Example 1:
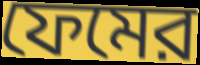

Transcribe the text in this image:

ফেমের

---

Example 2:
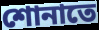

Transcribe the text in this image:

শোনাতে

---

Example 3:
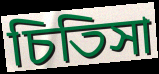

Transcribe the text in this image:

চিতিসা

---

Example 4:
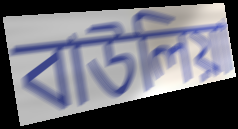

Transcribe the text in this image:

বাউলিয়া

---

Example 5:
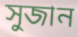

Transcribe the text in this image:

সুজান